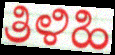
ತಿಳಿಹಿ